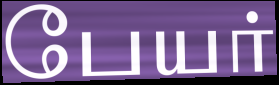
பேயர்